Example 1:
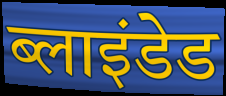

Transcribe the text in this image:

ब्लाइंडेड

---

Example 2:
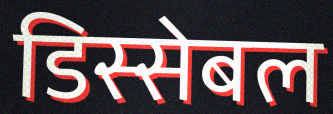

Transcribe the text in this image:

डिस्सेबल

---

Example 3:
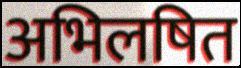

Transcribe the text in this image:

अभिलषित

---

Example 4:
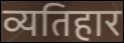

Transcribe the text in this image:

व्यतिहार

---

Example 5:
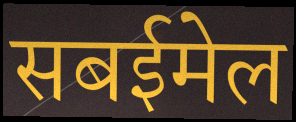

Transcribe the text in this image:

सबईमेल